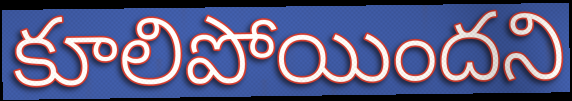
కూలిపోయిందని